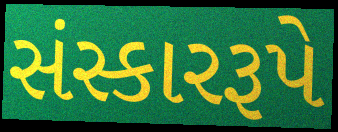
સંસ્કારરૂપે